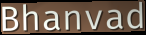
Bhanvad